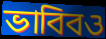
ভাবিবও